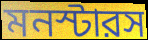
মনস্টারস